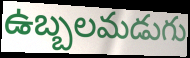
ఉబ్బలమడుగు